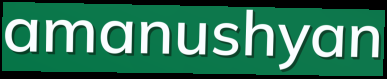
amanushyan